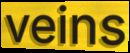
veins